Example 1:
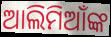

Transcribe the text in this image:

ଆଲିମିଆଁଙ୍କ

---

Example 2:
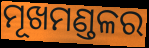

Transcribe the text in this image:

ମୂଖମଣ୍ଡଳର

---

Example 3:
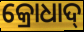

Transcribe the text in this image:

କ୍ରୋଧାଦ୍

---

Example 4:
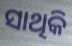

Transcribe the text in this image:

ସାଥିକି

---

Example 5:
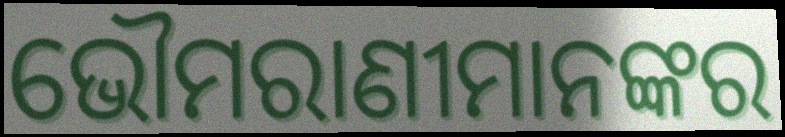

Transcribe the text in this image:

ଭୌମରାଣୀମାନଙ୍କର